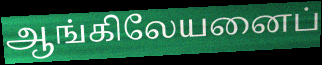
ஆங்கிலேயனைப்